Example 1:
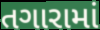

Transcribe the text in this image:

તગારામાં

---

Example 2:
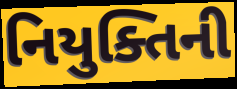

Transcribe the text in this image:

નિયુક્તિની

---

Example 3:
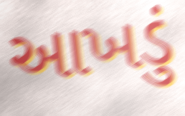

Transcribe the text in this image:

આખડું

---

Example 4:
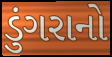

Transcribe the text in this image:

ડુંગરાનો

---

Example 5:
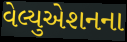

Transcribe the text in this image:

વેલ્યુએશનના